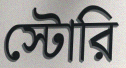
স্টোরি